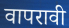
वापरावी